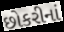
છોકરીનાં